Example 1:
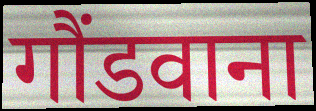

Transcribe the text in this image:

गौंडवाना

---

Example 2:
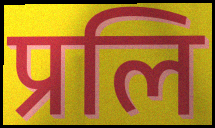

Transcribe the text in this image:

प्रलि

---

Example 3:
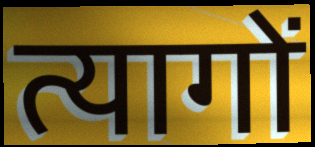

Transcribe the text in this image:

त्यागों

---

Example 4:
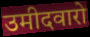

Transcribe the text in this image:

उमीदवारो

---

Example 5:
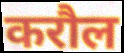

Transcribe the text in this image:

करौल